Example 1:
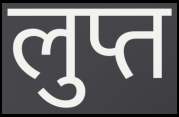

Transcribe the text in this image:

लुप्त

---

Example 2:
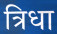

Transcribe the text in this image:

त्रिधा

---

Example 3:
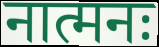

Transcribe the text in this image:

नात्मनः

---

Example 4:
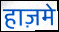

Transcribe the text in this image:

हाज़मे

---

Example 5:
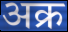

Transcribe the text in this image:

अक्र